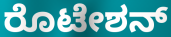
ರೊಟೇಶನ್